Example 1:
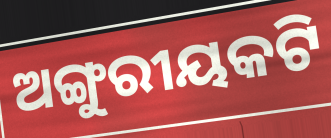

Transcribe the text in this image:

ଅଙ୍ଗୁରୀୟକଟି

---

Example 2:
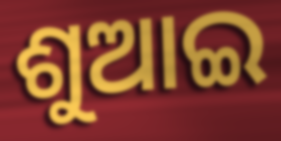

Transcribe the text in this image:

ଶୁଆଇ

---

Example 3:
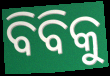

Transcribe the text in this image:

ବିବିକୁ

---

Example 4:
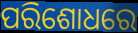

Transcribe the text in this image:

ପରିଶୋଧରେ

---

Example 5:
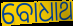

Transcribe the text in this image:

ବୋଧାଥ